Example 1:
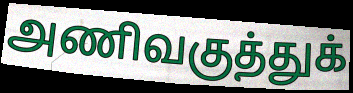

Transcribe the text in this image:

அணிவகுத்துக்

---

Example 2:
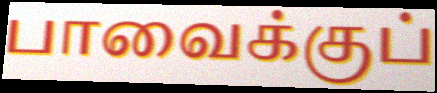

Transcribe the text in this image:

பாவைக்குப்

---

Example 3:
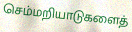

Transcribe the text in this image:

செம்மறியாடுகளைத்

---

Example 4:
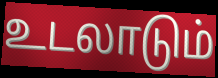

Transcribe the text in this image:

உடலாடும்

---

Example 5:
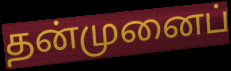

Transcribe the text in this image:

தன்முனைப்